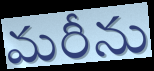
మరీను